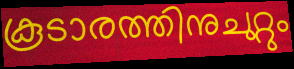
കൂടാരത്തിനുചുറ്റും